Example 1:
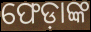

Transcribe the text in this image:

ଫେଡ଼ାଙ୍କ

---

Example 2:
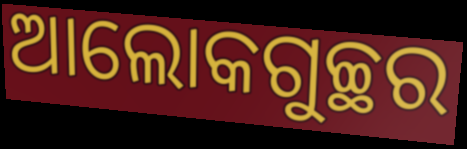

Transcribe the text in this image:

ଆଲୋକଗୁଚ୍ଛର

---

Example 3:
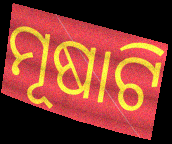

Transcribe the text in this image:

ମୂଷାଟି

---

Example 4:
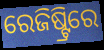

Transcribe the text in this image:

ରେଜିଷ୍ଟ୍ରିରେ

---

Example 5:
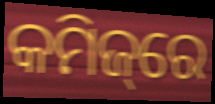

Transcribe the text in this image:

କମିଜ୍‌ରେ